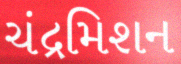
ચંદ્રમિશન